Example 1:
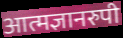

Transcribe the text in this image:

आत्मज्ञानरुपी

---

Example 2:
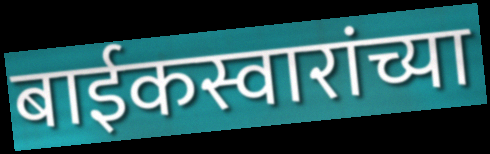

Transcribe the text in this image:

बाईकस्वारांच्या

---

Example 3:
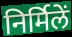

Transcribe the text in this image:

निर्मिलें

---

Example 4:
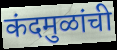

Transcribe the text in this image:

कंदमुळांची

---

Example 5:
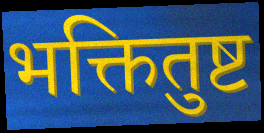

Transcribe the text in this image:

भक्तितुष्ट